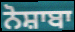
ਨੋਸ਼ਾਬਾ